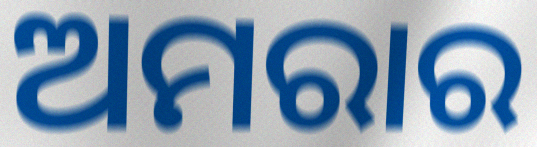
ଅମରାର